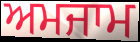
ਅਮਜਾਮ